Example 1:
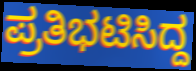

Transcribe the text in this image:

ಪ್ರತಿಭಟಿಸಿದ್ದ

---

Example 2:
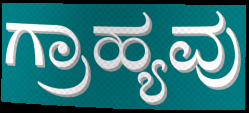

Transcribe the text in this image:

ಗ್ರಾಹ್ಯವು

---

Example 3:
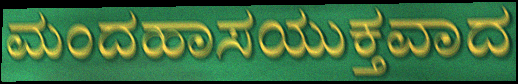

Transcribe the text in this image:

ಮಂದಹಾಸಯುಕ್ತವಾದ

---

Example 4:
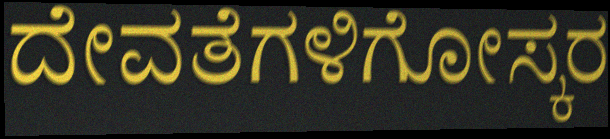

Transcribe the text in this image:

ದೇವತೆಗಳಿಗೋಸ್ಕರ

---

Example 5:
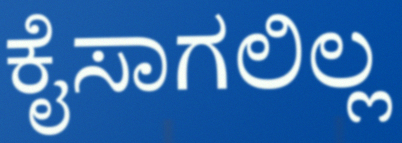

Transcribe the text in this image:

ಕೈಸಾಗಲಿಲ್ಲ